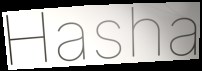
Hasha